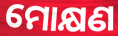
ମୋକ୍ଷଣ